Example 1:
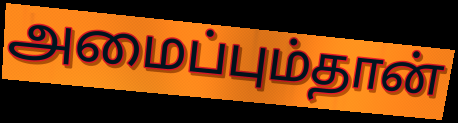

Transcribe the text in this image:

அமைப்பும்தான்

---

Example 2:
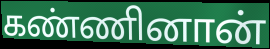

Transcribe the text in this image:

கண்ணினான்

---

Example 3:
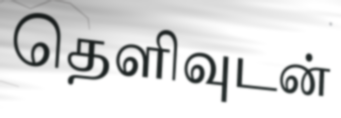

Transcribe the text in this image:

தெளிவுடன்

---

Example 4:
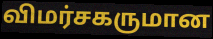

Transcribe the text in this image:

விமர்சகருமான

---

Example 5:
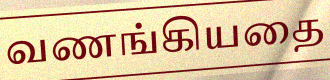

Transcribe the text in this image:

வணங்கியதை